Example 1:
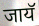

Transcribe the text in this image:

जायॅ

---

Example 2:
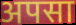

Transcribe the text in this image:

अपसा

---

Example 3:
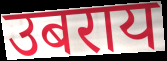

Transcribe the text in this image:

उबराय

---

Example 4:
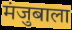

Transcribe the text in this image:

मंजुबाला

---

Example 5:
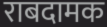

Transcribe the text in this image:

राबदामक